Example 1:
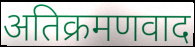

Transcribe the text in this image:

अतिक्रमणवाद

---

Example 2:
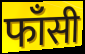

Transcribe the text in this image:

फाँसी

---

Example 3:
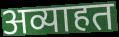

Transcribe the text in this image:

अव्याहत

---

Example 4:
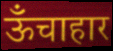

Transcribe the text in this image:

ऊँचाहार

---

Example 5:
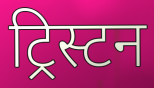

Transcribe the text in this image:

ट्रिस्टन